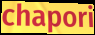
chapori